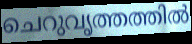
ചെറുവൃത്തത്തിൽ